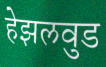
हेझलवुड